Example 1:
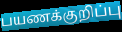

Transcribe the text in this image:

பயணக்குறிப்பு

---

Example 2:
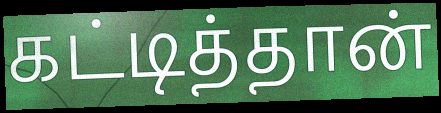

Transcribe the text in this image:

கட்டித்தான்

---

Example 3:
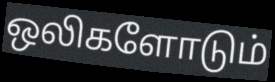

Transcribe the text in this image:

ஒலிகளோடும்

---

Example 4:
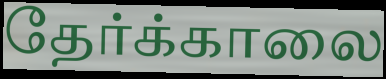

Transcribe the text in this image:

தேர்க்காலை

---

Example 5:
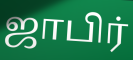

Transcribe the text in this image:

ஜாபிர்